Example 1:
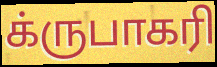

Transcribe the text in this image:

க்ருபாகரி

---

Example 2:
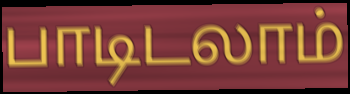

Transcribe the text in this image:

பாடிடலாம்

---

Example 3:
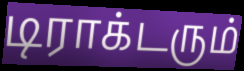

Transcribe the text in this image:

டிராக்டரும்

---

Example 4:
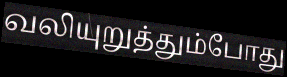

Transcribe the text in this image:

வலியுறுத்தும்போது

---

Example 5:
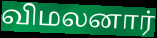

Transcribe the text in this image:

விமலனார்